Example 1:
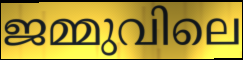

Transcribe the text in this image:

ജമ്മുവിലെ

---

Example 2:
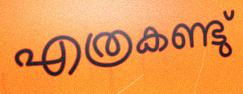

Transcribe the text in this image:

എത്രകണ്ടു്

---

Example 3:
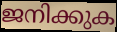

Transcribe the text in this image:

ജനിക്കുക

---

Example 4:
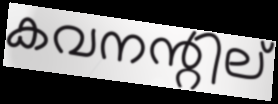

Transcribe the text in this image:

കവനന്റില്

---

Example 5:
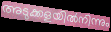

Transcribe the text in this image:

അടുക്കളയിൽനിന്നും